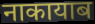
नाकायाब